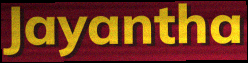
Jayantha